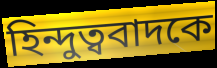
হিন্দুত্ববাদকে